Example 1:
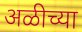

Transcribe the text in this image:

अळीच्या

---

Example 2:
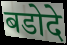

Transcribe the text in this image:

बडोदे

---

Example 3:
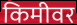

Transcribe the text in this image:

किमीवर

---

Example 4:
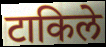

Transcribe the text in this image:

टाकिले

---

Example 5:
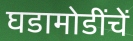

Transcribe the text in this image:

घडामोडींचें